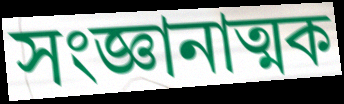
সংজ্ঞানাত্মক